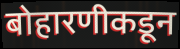
बोहारणीकडून